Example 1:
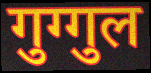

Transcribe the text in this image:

गुग्‍गुल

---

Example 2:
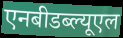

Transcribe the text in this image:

एनबीडब्ल्यूएल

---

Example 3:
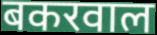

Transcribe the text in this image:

बकरवाल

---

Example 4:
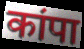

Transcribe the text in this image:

कांपा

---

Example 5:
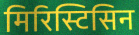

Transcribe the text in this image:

मिरिस्टिसिन